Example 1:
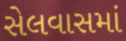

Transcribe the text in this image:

સેલવાસમાં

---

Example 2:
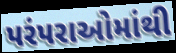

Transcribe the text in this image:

પરંપરાઓમાંથી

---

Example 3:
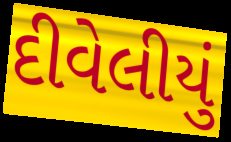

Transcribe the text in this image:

દીવેલીયું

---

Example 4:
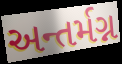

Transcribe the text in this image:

અન્તર્મગ્ન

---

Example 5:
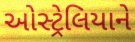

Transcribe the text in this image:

ઓસ્ટ્રેલિયાને